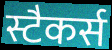
स्टैकर्स